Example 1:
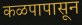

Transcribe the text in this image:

कळपापासून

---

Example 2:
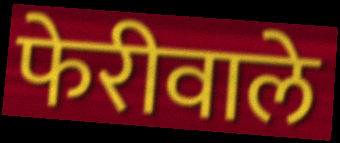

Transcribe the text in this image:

फेरीवाले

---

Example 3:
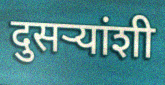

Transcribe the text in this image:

दुसर्‍यांशी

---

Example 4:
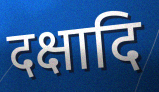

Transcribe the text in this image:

दक्षादि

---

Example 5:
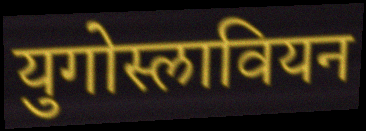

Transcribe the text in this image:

युगोस्लावियन